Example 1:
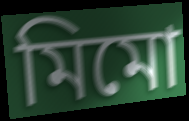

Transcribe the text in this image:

মিমো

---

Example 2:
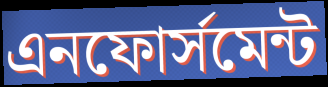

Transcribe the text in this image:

এনফোর্সমেন্ট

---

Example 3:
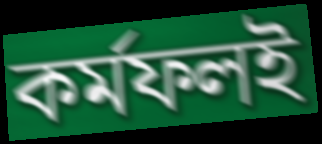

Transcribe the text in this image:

কর্মফলই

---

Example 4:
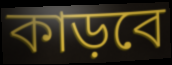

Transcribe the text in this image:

কাড়বে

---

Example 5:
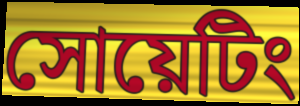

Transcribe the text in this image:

সোয়েটিং